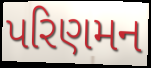
પરિણમન